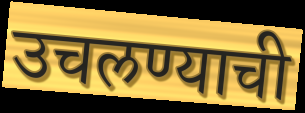
उचलण्याची